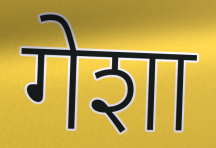
गेशा